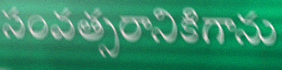
సంవత్సరానికిగాను